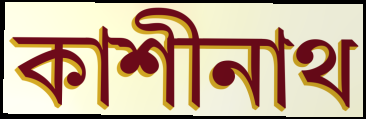
কাশীনাথ